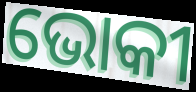
ଭୋକୀ